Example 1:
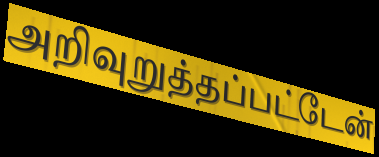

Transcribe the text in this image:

அறிவுறுத்தப்பட்டேன்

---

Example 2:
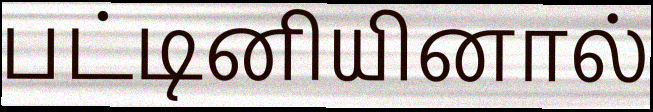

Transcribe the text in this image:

பட்டினியினால்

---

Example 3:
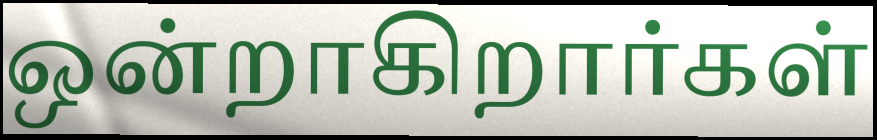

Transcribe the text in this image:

ஒன்றாகிறார்கள்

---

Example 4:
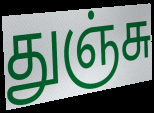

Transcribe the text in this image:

துஞ்சு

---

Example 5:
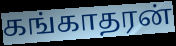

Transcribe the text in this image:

கங்காதரன்